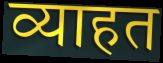
व्याहत